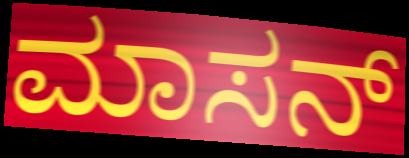
ಮಾಸನ್